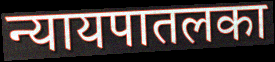
न्यायपातलका